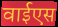
वाईएस